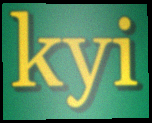
kyi